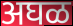
अघळ